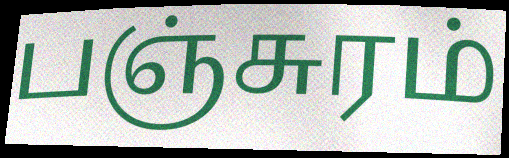
பஞ்சுரம்